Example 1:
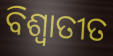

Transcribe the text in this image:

ବିଶ୍ୱାତୀତ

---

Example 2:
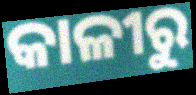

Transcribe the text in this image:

କାଳୀରୁ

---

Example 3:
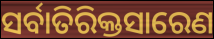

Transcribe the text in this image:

ସର୍ବାତିରିକ୍ତସାରେଣ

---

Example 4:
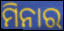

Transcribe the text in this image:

ମିନାର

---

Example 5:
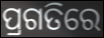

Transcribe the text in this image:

ପ୍ରଗତିରେ